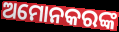
ଅମୋନକରଙ୍କ